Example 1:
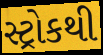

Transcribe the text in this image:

સ્ટ્રોકથી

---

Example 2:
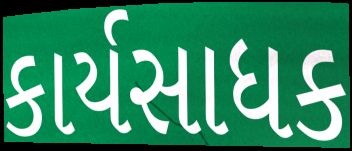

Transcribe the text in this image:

કાર્યસાધક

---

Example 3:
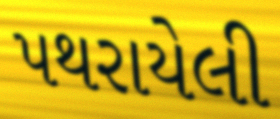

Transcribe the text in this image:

પથરાયેલી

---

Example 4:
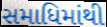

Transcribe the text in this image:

સમાધિમાંથી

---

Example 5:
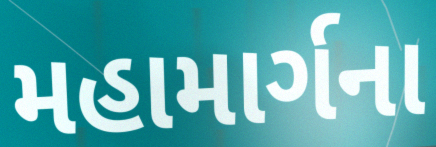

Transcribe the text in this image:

મહામાર્ગના